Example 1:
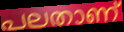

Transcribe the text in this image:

പലതാണ്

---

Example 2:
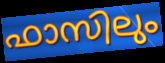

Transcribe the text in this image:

ഫാസിലും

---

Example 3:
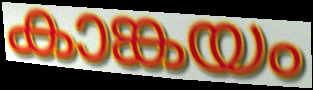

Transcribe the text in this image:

കാങ്കയം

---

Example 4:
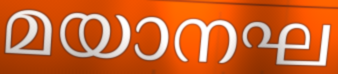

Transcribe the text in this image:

മയാനഘ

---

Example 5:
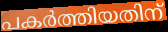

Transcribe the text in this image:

പകർത്തിയതിന്